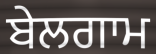
ਬੇਲਗਾਮ